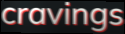
cravings